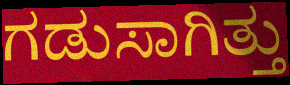
ಗಡುಸಾಗಿತ್ತು